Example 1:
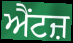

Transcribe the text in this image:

ਐਂਟਜ਼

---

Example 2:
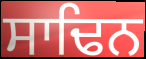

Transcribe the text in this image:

ਸਾਢਿਨ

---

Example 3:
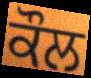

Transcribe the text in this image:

ਕੌਲ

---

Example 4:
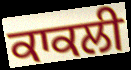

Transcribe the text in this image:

ਕਾਕਲੀ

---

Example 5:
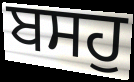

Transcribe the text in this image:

ਬਸਹੁ